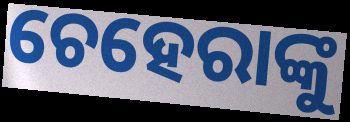
ଚେହେରାଙ୍କୁ